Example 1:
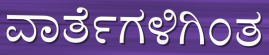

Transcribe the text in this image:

ವಾರ್ತೆಗಳಿಗಿಂತ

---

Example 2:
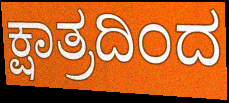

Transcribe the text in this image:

ಕ್ಷಾತ್ರದಿಂದ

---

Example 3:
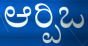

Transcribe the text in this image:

ಆರ್‍ಪಿಒ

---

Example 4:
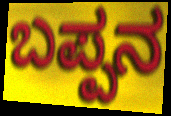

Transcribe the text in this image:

ಬಪ್ಪನ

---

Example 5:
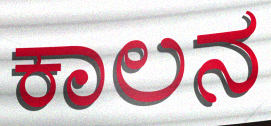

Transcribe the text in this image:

ಕಾಲನ